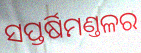
ସପ୍ତର୍ଷିମଣ୍ତଳର